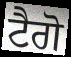
ਟੈਗੋ